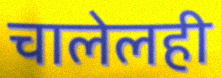
चालेलही